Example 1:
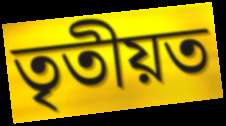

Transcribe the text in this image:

তৃতীয়ত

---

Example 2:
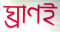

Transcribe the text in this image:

ঘ্রাণই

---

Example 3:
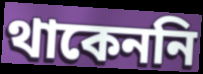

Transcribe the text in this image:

থাকেননি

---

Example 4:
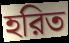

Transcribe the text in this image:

হরিত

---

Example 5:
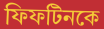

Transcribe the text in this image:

ফিফটিনকে